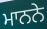
ਮਾਨਨੇ